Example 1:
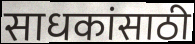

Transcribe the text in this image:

साधकांसाठी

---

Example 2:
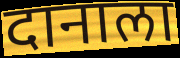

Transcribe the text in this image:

दानाला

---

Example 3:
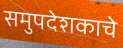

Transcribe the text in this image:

समुपदेशकाचे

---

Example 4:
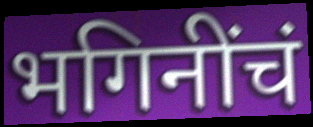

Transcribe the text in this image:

भगिनींचं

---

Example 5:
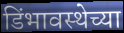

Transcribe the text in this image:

डिंभावस्थेच्या